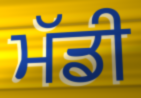
ਮੱਡੀ